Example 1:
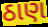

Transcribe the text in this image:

ઠાણ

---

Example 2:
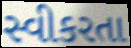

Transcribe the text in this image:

સ્વીકરતા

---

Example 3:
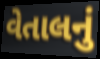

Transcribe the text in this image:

વેતાલનું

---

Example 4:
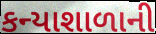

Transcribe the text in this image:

કન્યાશાળાની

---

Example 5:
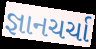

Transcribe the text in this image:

જ્ઞાનચર્ચા